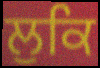
ਲੁਕਿ